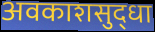
अवकाशसुद्धा